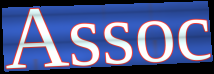
Assoc